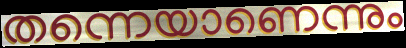
തന്നെയാണെന്നും